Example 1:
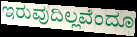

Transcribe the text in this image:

ಇರುವುದಿಲ್ಲವೆಂದೂ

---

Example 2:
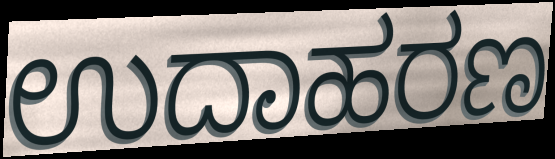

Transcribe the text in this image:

ಉದಾಹರಣ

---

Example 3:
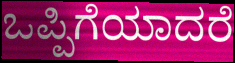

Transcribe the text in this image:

ಒಪ್ಪಿಗೆಯಾದರೆ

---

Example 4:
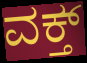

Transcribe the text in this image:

ವಕ್ತ್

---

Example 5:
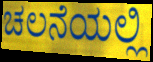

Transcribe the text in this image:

ಚಲನೆಯಲ್ಲಿ